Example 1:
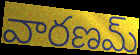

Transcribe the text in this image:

వారణమ్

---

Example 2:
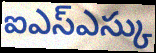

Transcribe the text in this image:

ఐఎస్ఎస్కు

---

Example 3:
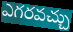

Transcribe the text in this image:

ఎగరవచ్చు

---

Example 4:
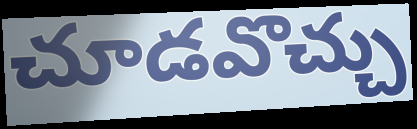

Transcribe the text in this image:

చూడవొచ్చు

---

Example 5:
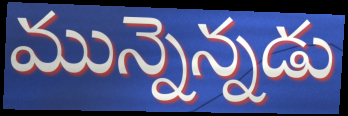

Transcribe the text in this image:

మున్నెన్నడు